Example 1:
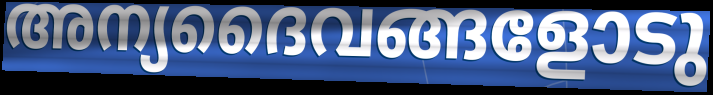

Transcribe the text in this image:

അന്യദൈവങ്ങളോടു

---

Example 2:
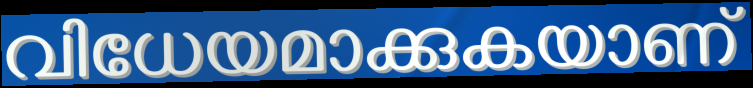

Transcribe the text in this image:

വിധേയമാക്കുകയാണ്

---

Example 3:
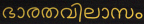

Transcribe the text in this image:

ഭാരതവിലാസം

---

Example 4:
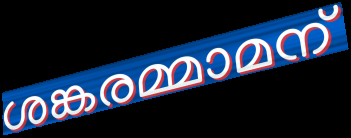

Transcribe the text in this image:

ശങ്കരമ്മാമന്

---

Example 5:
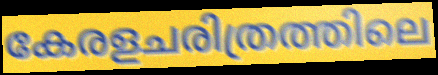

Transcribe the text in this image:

കേരളചരിത്രത്തിലെ